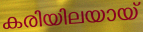
കരിയിലയായ്